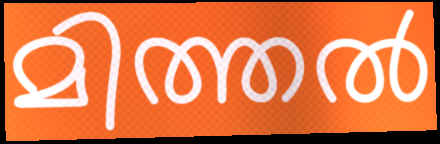
മിത്തൽ